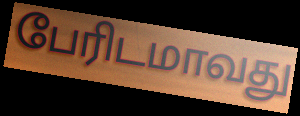
பேரிடமாவது